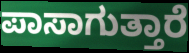
ಪಾಸಾಗುತ್ತಾರೆ